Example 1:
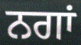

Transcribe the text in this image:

ਨਗਾਂ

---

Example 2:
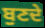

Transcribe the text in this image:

ਬੁਣਦੇ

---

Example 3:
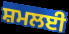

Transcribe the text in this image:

ਸ਼ਮਲਈ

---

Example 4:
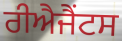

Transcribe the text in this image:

ਰੀਐਜੈਂਟਸ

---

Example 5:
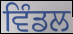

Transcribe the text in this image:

ਵਿੰਡਲ